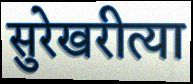
सुरेखरीत्या